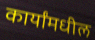
कार्यांमधील